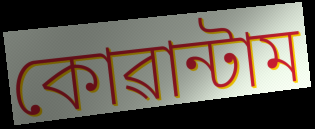
কোৱান্টাম